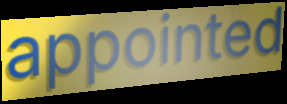
appointed